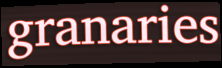
granaries